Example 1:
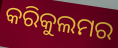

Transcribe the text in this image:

କରିକୁଲମର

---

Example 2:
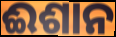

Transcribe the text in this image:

ଈଶାନ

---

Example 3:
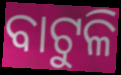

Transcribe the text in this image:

ବାଟୁଳି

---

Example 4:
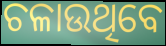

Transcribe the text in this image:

ଚଳାଉଥିବେ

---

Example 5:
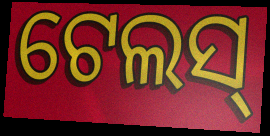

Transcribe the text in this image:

ଟେଲସ୍